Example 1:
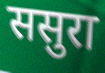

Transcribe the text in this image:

ससुरा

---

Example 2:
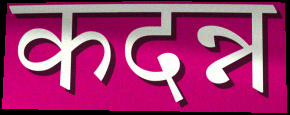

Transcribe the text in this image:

कदन्न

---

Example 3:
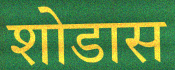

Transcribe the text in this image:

शोडास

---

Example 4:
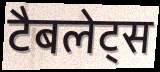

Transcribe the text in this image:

टैबलेट्स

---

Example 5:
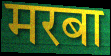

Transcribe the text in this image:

मरबा